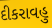
દીકરાવહુ